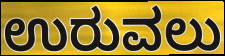
ಉರುವಲು